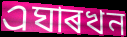
এঘাৰখন